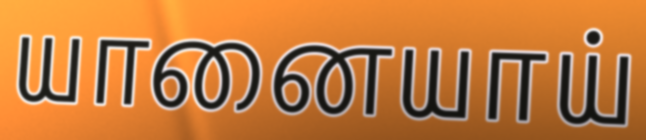
யானையாய்